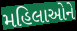
મહિલાઓને